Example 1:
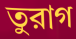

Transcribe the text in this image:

তুরাগ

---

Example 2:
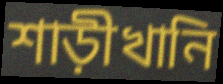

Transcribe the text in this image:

শাড়ীখানি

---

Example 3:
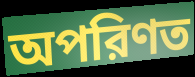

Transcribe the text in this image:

অপরিণত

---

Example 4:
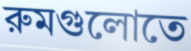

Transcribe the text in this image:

রুমগুলোতে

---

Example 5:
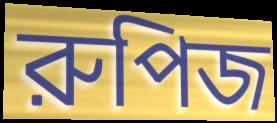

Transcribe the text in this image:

রুপিজ